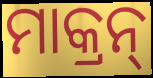
ମାକ୍ରନ୍